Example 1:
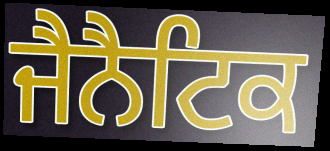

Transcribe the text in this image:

ਜੈਨੈਟਿਕ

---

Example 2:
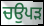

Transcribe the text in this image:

ਚਉਪੜ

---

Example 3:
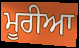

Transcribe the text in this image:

ਮੂਰੀਆ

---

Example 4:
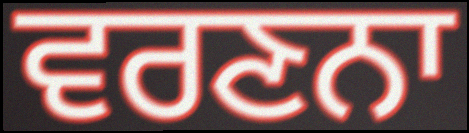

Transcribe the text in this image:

ਵਰਣਨਾ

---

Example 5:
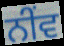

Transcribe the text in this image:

ਨੀਂਵ